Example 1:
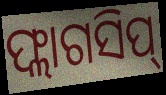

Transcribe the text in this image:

ଫ୍ଲାଗସିପ୍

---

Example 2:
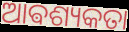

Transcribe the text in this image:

ଆଵଶ୍ୟକତା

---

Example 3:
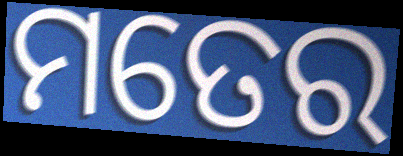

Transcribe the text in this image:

ମତେର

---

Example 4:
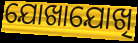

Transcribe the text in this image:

ଯୋଖାଯୋଖି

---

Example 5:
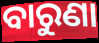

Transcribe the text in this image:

ବାରୁଣା